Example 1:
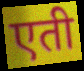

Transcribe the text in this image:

एती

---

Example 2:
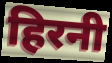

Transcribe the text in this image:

हिरनी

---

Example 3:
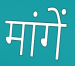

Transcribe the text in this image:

मांगें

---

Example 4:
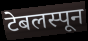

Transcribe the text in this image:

टेबलस्पून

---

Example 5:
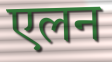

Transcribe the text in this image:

एलन